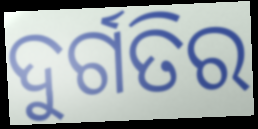
ଦୁର୍ଗତିର